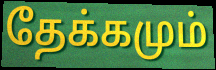
தேக்கமும்